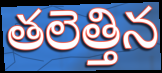
తలెత్తిన